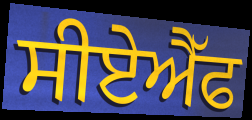
ਸੀਏਐੱਫ